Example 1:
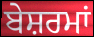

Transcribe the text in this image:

ਬੇਸ਼ਰਮਾਂ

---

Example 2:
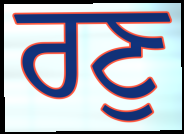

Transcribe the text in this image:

ਰਣੁ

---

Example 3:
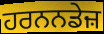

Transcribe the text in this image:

ਹਰਨਨਡੇਜ਼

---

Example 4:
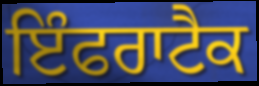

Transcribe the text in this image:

ਇੰਫਰਾਟੈਕ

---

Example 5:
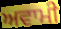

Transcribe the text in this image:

ਅਵਾਮੀ